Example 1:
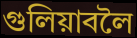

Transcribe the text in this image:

গুলিয়াবলৈ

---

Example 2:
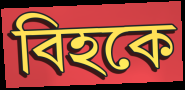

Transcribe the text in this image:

বিহকে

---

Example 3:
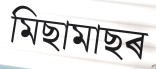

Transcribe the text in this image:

মিছামাছৰ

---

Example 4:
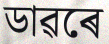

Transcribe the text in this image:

ডাৱৰে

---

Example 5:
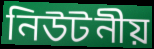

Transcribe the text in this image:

নিউটনীয়